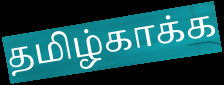
தமிழ்காக்க